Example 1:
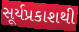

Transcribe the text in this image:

સૂર્યપ્રકાશથી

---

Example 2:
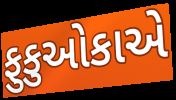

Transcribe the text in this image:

ફુકુઓકાએ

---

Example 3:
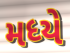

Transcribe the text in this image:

મધ્યે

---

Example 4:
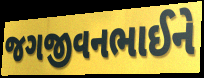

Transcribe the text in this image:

જગજીવનભાઈને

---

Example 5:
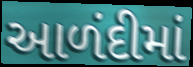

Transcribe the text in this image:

આળંદીમાં